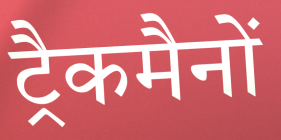
ट्रैकमैनों